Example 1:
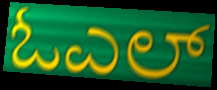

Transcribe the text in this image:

ಓಎಲ್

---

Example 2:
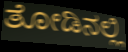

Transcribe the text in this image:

ತೋಡಿನಲ್ಲಿ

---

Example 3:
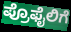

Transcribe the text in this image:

ಪ್ರೊಫೈಲಿಗೆ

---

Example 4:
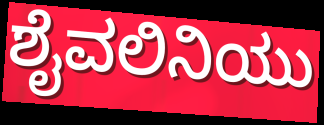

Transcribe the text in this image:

ಶೈವಲಿನಿಯು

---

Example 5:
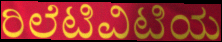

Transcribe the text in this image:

ರಿಲೆಟಿವಿಟಿಯ